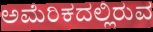
ಅಮೆರಿಕದಲ್ಲಿರುವ